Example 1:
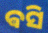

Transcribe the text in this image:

ଵସି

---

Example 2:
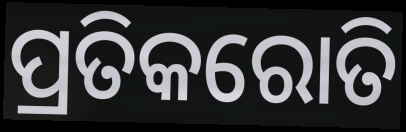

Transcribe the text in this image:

ପ୍ରତିକରୋତି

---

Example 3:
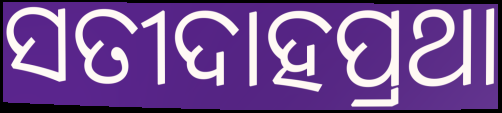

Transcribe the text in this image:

ସତୀଦାହପ୍ରଥା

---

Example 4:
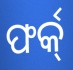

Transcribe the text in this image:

ଫର୍କ୍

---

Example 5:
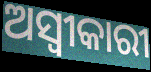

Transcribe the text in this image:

ଅସ୍ଵୀକାରୀ